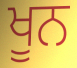
ਖੂਨ